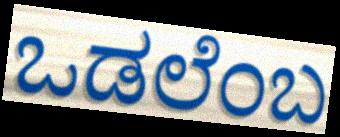
ಒಡಲೆಂಬ